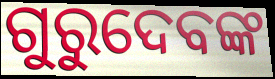
ଗୁରୁଦେବଙ୍କ